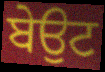
ਬੇਉਟ